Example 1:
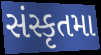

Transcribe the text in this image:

સંસ્કૃતમા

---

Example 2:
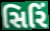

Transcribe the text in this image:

સિરિં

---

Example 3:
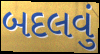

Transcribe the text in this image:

બદલવું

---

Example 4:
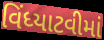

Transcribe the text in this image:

વિંધ્યાટવીમાં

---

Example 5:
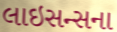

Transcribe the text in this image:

લાઇસન્સના